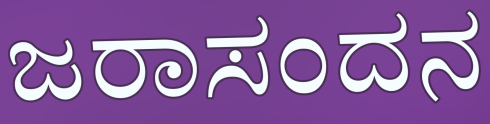
ಜರಾಸಂದನ